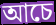
আচে